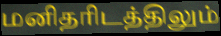
மனிதரிடத்திலும்